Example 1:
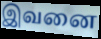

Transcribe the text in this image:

இவனை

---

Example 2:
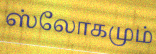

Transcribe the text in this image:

ஸ்லோகமும்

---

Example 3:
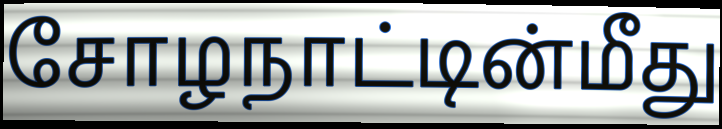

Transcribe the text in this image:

சோழநாட்டின்மீது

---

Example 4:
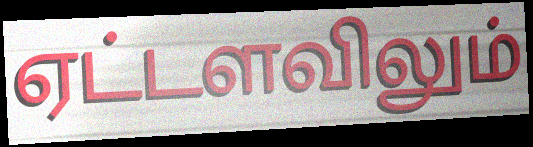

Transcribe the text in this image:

ஏட்டளவிலும்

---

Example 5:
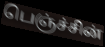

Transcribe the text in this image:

பெஞ்ச்சின்